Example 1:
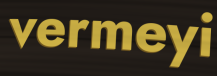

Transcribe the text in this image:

vermeyi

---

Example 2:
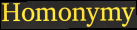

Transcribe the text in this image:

Homonymy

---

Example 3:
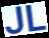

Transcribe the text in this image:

JL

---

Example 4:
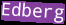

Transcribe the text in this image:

Edberg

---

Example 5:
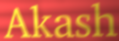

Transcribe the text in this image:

Akash